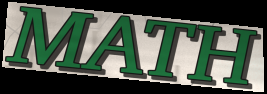
MATH